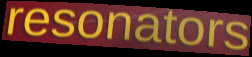
resonators